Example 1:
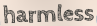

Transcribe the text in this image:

harmless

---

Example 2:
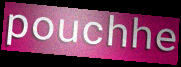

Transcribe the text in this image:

pouchhe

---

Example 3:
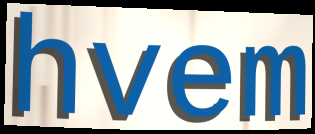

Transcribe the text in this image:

hvem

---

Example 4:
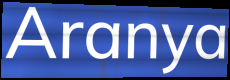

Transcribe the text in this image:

Aranya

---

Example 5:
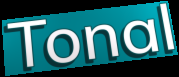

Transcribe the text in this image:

Tonal